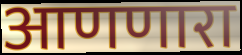
आणणारा